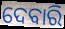
ଦେବାରି